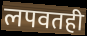
लपवतही